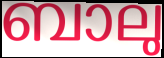
ബാലു